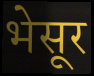
भेसूर